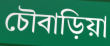
চৌবাড়িয়া